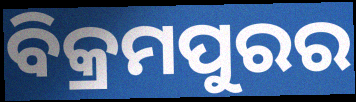
ବିକ୍ରମପୁରର